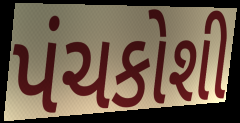
પંચકોશી